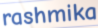
rashmika